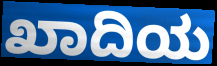
ಖಾದಿಯ